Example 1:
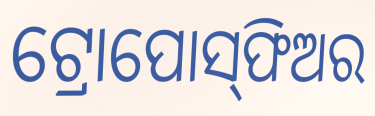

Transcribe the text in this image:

ଟ୍ରୋପୋସ୍‌ଫିଅର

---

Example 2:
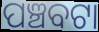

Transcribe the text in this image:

ପଞ୍ଚବଟା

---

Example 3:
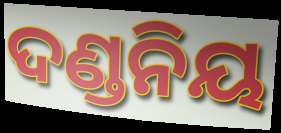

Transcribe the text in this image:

ଦଣ୍ଡନିୟ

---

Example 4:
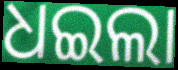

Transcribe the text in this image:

ଧଇଲା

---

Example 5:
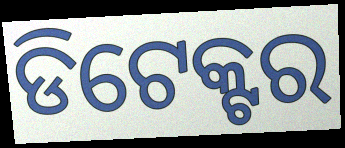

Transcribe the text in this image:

ଡିଟେକ୍ଟର